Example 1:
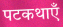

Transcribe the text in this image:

पटकथाएँ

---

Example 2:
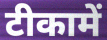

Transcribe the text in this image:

टीकामें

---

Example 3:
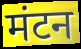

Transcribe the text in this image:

मंटन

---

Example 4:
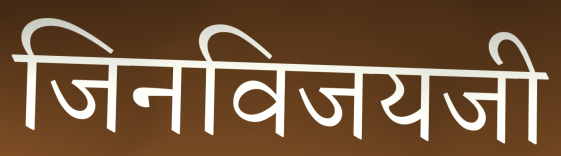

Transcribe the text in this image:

जिनविजयजी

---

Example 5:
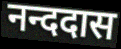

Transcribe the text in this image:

नन्ददास